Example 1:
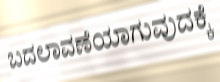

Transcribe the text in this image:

ಬದಲಾವಣೆಯಾಗುವುದಕ್ಕೆ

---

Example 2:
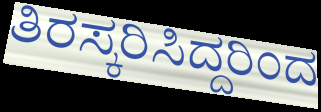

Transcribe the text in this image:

ತಿರಸ್ಕರಿಸಿದ್ದರಿಂದ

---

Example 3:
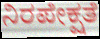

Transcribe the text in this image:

ನಿರಪೇಕ್ಷತೆ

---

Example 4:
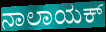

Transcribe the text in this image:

ನಾಲಾಯಕ್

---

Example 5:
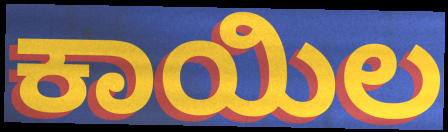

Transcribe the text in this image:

ಕಾಯಿಲ